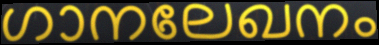
ഗാനലേഖനം